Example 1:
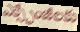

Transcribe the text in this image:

ఎక్స్ఛేంజీలకు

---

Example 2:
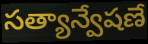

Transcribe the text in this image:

సత్యాన్వేషణే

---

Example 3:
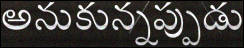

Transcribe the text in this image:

అనుకున్నప్పుడు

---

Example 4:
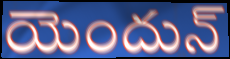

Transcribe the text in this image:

యెందున్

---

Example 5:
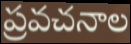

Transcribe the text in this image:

ప్రవచనాల